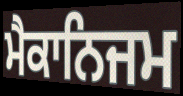
ਮੈਕਾਨਿਜਮ